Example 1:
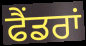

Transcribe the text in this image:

ਫੈਂਡਰਾਂ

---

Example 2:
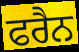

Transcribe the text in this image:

ਫਰੈਨ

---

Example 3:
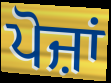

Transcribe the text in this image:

ਪੋਜ਼ਾਂ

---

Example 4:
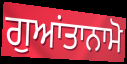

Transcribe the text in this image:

ਗੁਆਂਤਾਨਾਮੋ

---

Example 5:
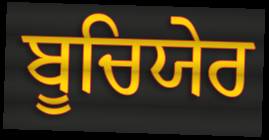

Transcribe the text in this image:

ਬੂਚਿਯੇਰ